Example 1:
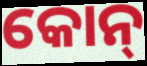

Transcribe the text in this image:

କୋନ୍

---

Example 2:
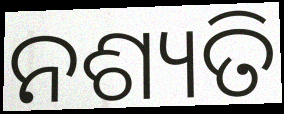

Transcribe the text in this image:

ନଶ୍ୟତି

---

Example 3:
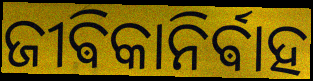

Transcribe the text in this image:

ଜୀଵିକାନିର୍ଵାହ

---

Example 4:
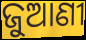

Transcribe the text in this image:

ଜୁଆଣୀ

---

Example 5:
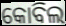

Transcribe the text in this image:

କୋବିଲ